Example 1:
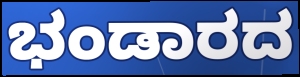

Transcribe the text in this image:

ಭಂಡಾರದ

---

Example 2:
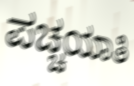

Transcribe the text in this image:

ಪಚ್ಚಯಾತಿ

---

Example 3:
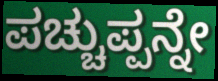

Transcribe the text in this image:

ಪಚ್ಚುಪ್ಪನ್ನೇ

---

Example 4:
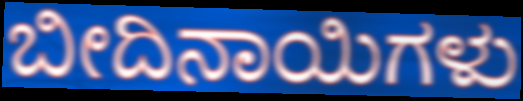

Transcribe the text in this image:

ಬೀದಿನಾಯಿಗಳು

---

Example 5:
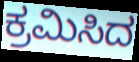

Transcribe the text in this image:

ಕ್ರಮಿಸಿದ